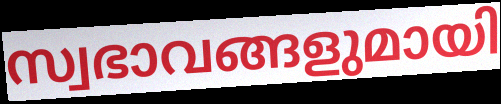
സ്വഭാവങ്ങളുമായി